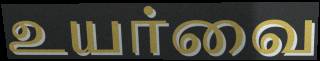
உயர்வை